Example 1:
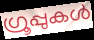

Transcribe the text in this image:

ഗ്രൂപ്പുകൾ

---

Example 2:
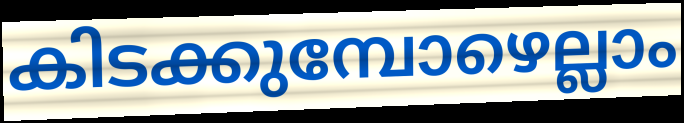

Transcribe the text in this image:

കിടക്കുമ്പോഴെല്ലാം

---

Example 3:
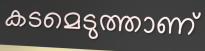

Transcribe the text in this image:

കടമെടുത്താണ്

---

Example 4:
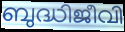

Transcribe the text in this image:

ബുദ്ധിജീവി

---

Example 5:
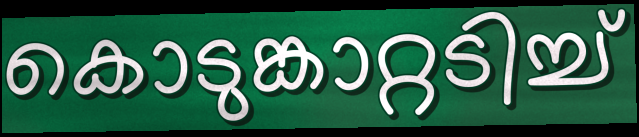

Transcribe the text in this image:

കൊടുങ്കാറ്റടിച്ച്